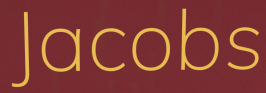
Jacobs